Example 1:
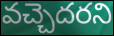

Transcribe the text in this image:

వచ్చెదరని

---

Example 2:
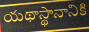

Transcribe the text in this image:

యథాస్థానానికి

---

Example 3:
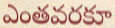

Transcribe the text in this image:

ఎంతవరకూ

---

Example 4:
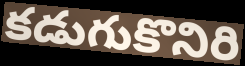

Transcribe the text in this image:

కడుగుకొనిరి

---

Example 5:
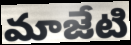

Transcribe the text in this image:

మాజేటి